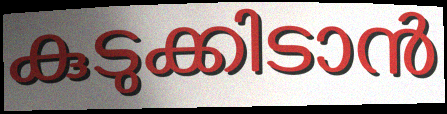
കുടുക്കിടാൻ